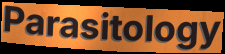
Parasitology